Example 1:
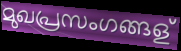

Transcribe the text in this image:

മുഖപ്രസംഗങ്ങള്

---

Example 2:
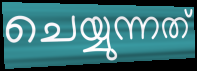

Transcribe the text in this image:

ചെയ്യുന്നത്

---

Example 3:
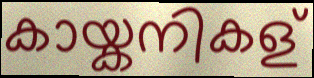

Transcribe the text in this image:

കായ്കനികള്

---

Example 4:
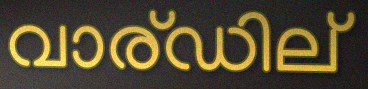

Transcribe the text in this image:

വാര്ഡില്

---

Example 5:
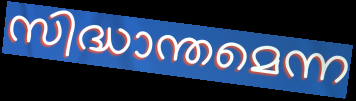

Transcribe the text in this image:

സിദ്ധാന്തമെന്ന